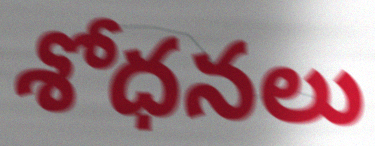
శోధనలు